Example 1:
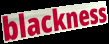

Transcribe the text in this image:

blackness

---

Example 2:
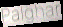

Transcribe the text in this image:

Palghar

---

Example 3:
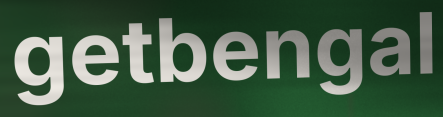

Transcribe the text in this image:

getbengal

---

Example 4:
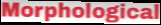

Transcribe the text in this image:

Morphological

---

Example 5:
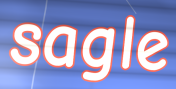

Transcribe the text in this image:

sagle